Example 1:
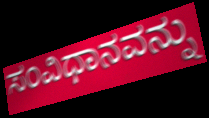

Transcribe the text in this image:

ಸಂವಿಧಾನವನ್ನು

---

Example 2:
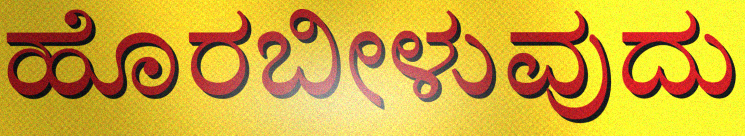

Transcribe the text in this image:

ಹೊರಬೀಳುವುದು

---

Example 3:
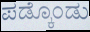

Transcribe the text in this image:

ಪಡ್ಕೊಂಡು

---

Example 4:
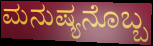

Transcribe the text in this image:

ಮನುಷ್ಯನೊಬ್ಬ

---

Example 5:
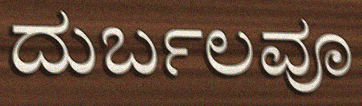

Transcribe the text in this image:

ದುರ್ಬಲವೂ